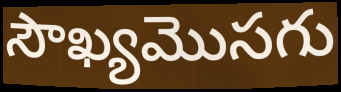
సౌఖ్యమొసగు